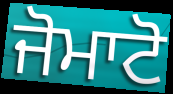
ਜੋਮਾਟੋ